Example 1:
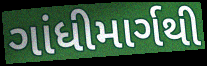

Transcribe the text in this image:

ગાંધીમાર્ગથી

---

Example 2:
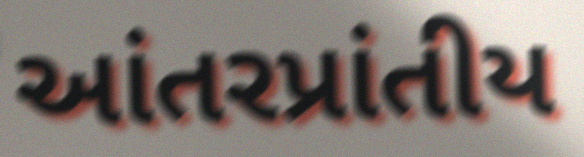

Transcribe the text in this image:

આંતરપ્રાંતીય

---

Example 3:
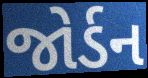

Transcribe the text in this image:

જોર્ડન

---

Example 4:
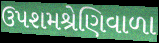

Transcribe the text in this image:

ઉપશમશ્રેણિવાળા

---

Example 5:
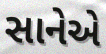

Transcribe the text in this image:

સાનેએ